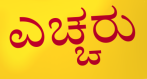
ಎಚ್ಚರು